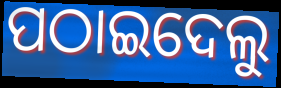
ପଠାଇଦେଲୁ